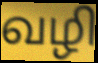
வழி